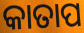
କାତାପ